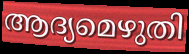
ആദ്യമെഴുതി